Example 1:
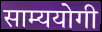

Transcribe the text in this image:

साम्ययोगी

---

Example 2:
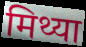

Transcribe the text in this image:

मिथ्या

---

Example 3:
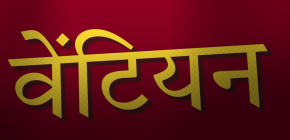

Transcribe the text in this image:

वेंटियन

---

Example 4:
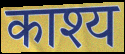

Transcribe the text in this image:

काश्य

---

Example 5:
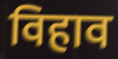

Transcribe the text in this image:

विहाव